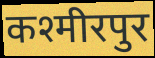
कश्मीरपुर